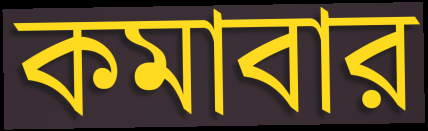
কমাবার